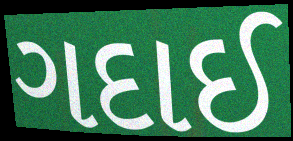
ગદાઈ